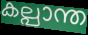
കല്പാന്ത